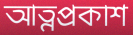
আত্নপ্রকাশ